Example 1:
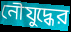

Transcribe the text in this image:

নৌযুদ্ধের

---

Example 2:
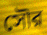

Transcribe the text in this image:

সৌর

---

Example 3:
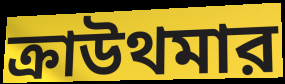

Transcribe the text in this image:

ক্রাউথমার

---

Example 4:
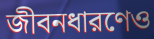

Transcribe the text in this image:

জীবনধারণেও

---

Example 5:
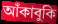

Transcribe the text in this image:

আঁকাবুকি